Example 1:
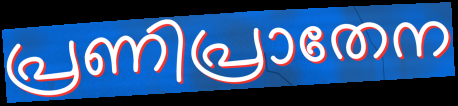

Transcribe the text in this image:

പ്രണിപ്രാതേന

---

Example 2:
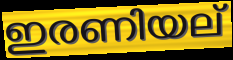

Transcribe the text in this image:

ഇരണിയല്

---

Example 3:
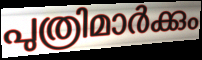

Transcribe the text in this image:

പുത്രിമാർക്കും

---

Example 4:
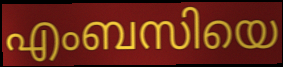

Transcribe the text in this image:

എംബസിയെ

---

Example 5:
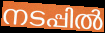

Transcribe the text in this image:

നടപ്പിൽ